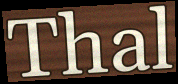
Thal